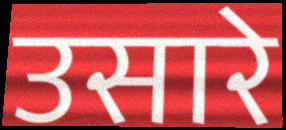
उसारे